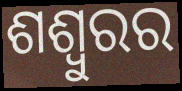
ଶଶ୍ୱୁରର